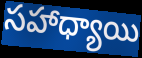
సహాధ్యాయి